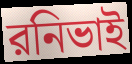
রনিভাই